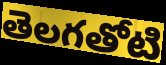
తెలగతోటి